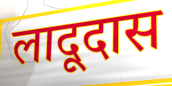
लादूदास